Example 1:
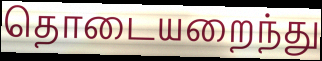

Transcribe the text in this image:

தொடையறைந்து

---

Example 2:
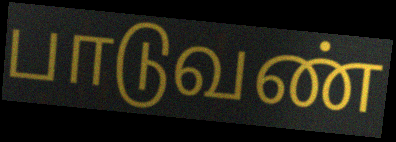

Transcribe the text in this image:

பாடுவண்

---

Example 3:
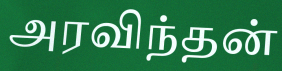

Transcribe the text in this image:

அரவிந்தன்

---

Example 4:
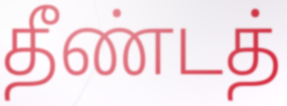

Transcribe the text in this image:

தீண்டத்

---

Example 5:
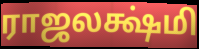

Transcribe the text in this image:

ராஜலக்ஷ்மி